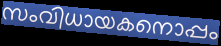
സംവിധായകനൊപ്പം